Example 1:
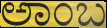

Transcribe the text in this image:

ಅಾಂಬ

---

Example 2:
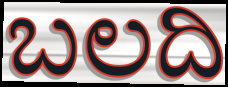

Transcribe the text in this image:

ಬಲದಿ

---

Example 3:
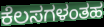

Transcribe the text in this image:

ಕೆಲಸಗಳಂತಹ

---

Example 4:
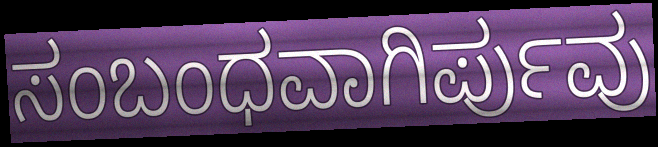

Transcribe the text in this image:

ಸಂಬಂಧವಾಗಿರ್ಪುವು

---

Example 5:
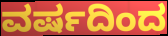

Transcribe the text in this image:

ವರ್ಷದಿಂದ